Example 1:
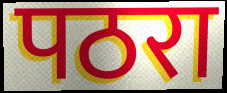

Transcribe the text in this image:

पठरा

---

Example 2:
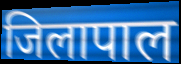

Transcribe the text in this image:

जिलापाल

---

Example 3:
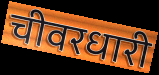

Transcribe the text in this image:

चीवरधारी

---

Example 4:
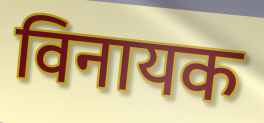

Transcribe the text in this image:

विनायक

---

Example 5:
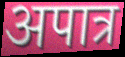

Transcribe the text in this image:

अपात्र